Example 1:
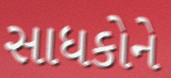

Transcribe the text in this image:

સાધકોને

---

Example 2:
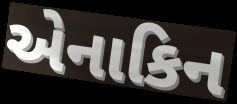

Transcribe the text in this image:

એનાકિન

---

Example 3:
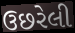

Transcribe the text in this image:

ઉછરેલી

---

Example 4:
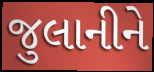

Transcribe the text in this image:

જુલાનીને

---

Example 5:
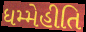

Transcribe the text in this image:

ધમ્મેહીતિ